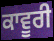
ਕਾਵੂਰੀ